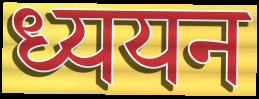
ध्ययन